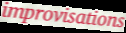
improvisations